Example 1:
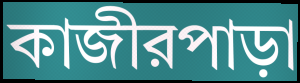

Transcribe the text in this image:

কাজীরপাড়া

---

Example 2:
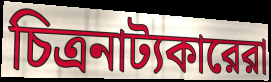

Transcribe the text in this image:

চিত্রনাট্যকারেরা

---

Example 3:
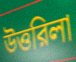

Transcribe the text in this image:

উত্তরিলা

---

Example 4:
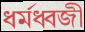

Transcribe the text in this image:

ধর্মধ্বজী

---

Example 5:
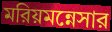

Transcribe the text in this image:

মরিয়মন্নেসার